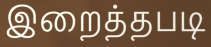
இறைத்தபடி